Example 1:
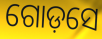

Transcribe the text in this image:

ଗୋଡ଼ସେ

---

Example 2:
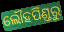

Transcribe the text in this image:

ଲୌହପିଣ୍ଡରୁ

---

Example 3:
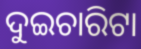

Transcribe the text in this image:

ଦୁଇଚାରିଟା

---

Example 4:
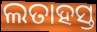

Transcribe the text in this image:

ଲତାହସ୍ତ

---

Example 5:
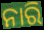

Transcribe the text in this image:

ନାରି